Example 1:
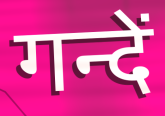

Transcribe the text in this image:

गन्दें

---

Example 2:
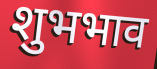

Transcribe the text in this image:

शुभभाव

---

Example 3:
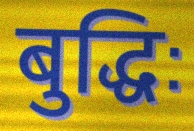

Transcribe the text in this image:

बुद्धिः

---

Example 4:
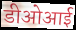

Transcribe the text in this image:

डीओआई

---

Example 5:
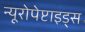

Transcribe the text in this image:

न्यूरोपेप्टाइड्स